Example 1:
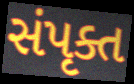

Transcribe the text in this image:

સંપૃક્ત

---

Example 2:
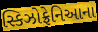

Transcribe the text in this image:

સ્કિઝોફ્રેનિઆના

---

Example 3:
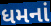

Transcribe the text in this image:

ધમનાં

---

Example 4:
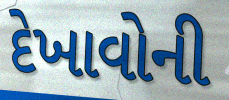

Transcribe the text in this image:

દેખાવોની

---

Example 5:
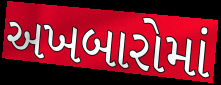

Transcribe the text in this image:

અખબારોમાં